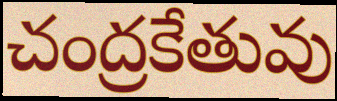
చంద్రకేతువు